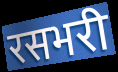
रसभरी